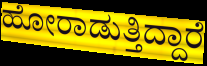
ಹೋರಾಡುತ್ತಿದ್ದಾರೆ